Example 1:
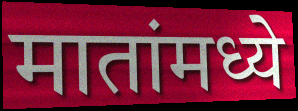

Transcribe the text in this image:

मातांमध्ये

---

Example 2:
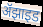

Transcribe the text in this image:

ॲझाइड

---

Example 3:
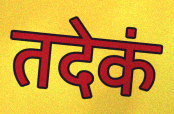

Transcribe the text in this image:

तदेकं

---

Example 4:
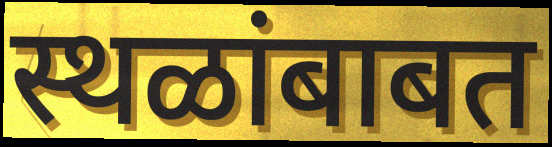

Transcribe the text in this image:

स्थळांबाबत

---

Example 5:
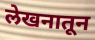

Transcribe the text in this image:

लेखनातून